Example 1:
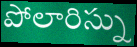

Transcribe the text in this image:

పోలారిస్ను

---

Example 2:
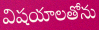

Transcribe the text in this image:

విషయాలతోను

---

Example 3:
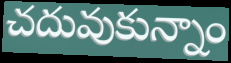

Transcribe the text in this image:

చదువుకున్నాం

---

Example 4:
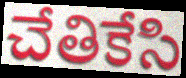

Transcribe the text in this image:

చేతికేసి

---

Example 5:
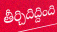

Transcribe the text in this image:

తీర్చిదిద్దింది